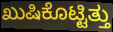
ಖುಷಿಕೊಟ್ಟಿತ್ತು